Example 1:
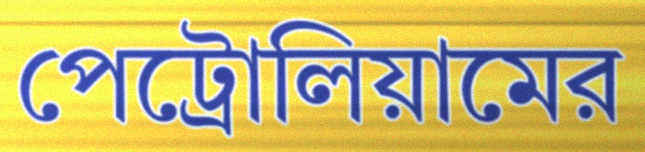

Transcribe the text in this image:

পেট্রোলিয়ামের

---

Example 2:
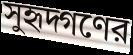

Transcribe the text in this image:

সুহৃদ্গণের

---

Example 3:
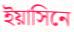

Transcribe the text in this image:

ইয়াসিনে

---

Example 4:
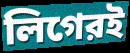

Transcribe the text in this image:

লিগেরই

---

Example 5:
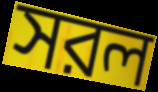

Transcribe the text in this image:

সরল